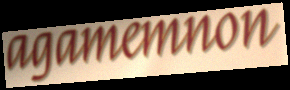
agamemnon